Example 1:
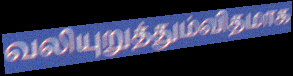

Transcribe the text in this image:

வலியுறுத்தும்விதமாக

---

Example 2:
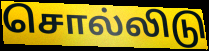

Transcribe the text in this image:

சொல்லிடு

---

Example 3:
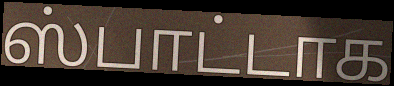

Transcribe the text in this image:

ஸ்பாட்டாக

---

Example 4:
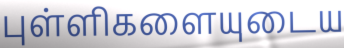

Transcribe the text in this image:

புள்ளிகளையுடைய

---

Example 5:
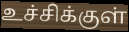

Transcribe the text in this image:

உச்சிக்குள்